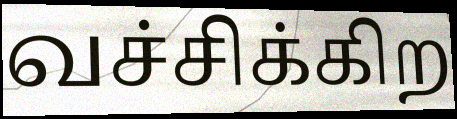
வச்சிக்கிற